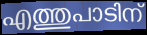
എത്തുപാടിന്